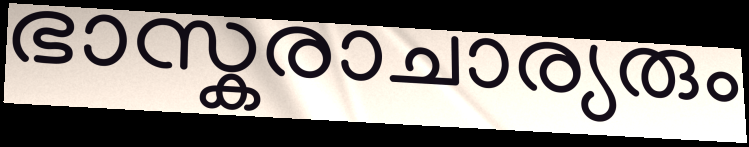
ഭാസ്കരാചാര്യരും